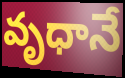
వృధానే